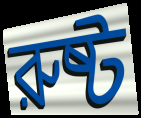
রুষ্ট